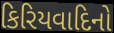
કિરિયવાદિનો